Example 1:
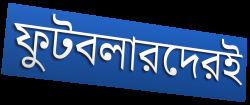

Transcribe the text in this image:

ফুটবলারদেরই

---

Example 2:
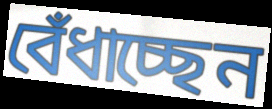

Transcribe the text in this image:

বেঁধাচ্ছেন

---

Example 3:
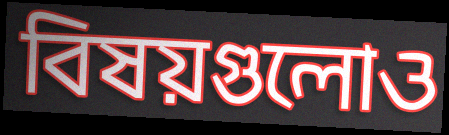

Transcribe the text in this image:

বিষয়গুলোও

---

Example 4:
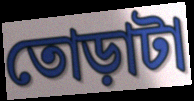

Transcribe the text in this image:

তোড়াটা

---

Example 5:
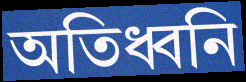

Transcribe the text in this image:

অতিধ্বনি